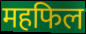
महफिल